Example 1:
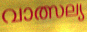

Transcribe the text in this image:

വാത്സല്യ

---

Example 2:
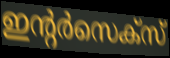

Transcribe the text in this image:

ഇന്റർസെക്സ്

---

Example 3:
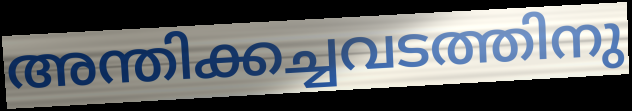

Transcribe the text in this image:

അന്തിക്കച്ചവടത്തിനു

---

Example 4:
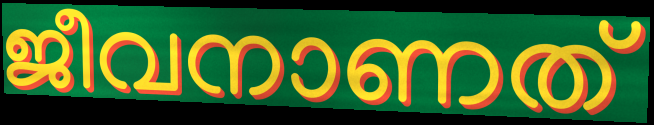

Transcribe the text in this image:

ജീവനാണത്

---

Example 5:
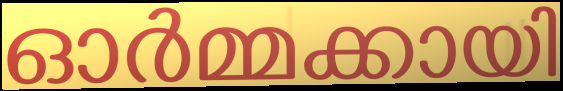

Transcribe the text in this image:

ഓർമ്മക്കായി